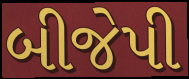
બીજેપી